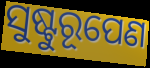
ସୁଷ୍ଟୁରୂପେଣ